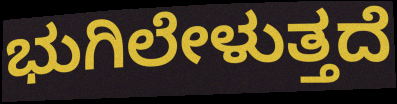
ಭುಗಿಲೇಳುತ್ತದೆ